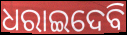
ଧରାଇଦେବି